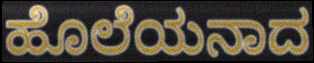
ಹೊಲೆಯನಾದ